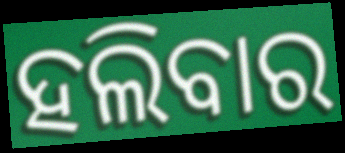
ହଲିବାର